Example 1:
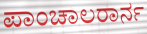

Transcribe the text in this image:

ಪಾಂಚಾಲರಾರ್ನ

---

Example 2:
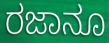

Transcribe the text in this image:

ರಜಾನೂ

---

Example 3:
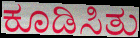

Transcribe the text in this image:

ಕೂಡಿಸಿತು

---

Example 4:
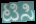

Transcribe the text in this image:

ಟಿಸಿ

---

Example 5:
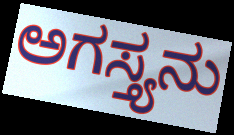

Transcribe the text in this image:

ಅಗಸ್ತ್ಯನು